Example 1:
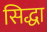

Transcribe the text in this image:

सिद्धा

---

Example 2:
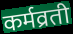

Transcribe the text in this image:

कर्मव्रती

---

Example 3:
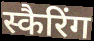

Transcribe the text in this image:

स्कैरिंग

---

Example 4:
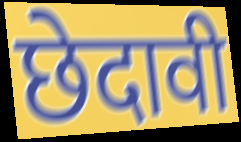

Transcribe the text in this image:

छेदावी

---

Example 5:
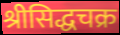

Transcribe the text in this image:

श्रीसिद्धचक्र